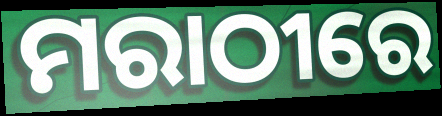
ମରାଠୀରେ